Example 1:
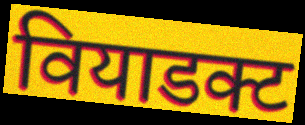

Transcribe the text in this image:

वियाडक्ट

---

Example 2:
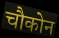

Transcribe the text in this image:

चौकोन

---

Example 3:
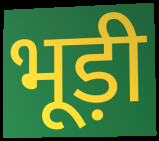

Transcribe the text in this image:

भूड़ी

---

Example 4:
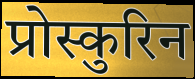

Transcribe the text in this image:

प्रोस्कुरिन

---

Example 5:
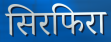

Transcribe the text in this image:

सिरफिरा